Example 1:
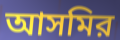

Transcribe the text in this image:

আসমির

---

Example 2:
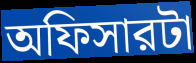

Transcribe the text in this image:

অফিসারটা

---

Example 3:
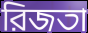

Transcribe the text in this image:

রিজতা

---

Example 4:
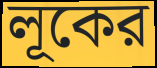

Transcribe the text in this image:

লূকের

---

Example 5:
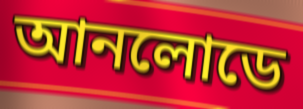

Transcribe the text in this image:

আনলোডে